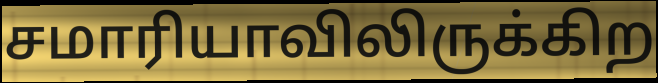
சமாரியாவிலிருக்கிற